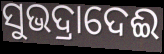
ସୁଭଦ୍ରାଦେଈ